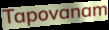
Tapovanam